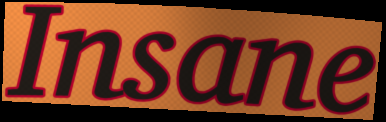
Insane